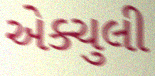
એક્ચુલી